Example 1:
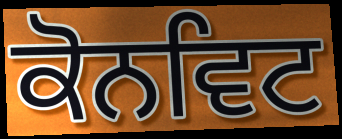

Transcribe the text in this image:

ਕੋਨਵਿਟ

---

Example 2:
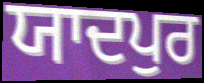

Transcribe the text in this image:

ਯਾਦਪੁਰ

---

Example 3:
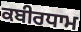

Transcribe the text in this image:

ਕਬੀਰਧਾਮ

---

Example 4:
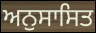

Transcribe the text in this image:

ਅਨੁਸਾਸਿਤ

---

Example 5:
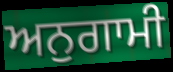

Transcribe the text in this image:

ਅਨੁਗਾਮੀ